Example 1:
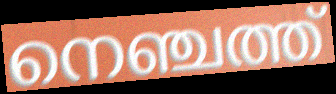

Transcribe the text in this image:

നെഞ്ചത്ത്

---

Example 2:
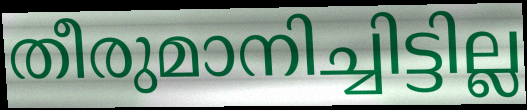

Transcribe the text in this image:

തീരുമാനിച്ചിട്ടില്ല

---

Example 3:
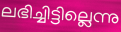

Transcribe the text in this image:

ലഭിച്ചിട്ടില്ലെന്നു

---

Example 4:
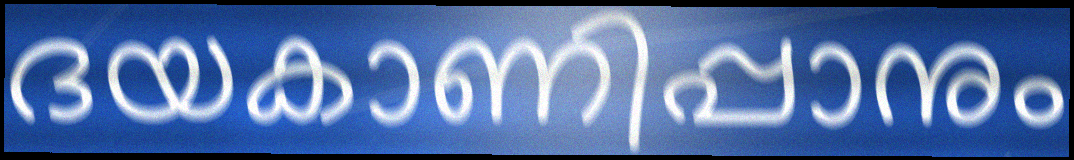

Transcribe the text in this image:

ദയകാണിപ്പാനും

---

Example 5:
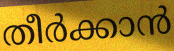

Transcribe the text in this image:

തീർക്കാൻ